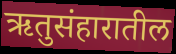
ऋतुसंहारातील